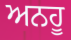
ਅਨਹੂ